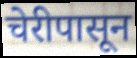
चेरीपासून